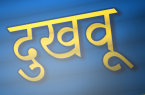
दुखवू